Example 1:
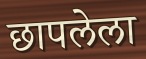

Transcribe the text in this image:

छापलेला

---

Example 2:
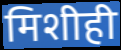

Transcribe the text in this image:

मिशीही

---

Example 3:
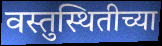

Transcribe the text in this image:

वस्तुस्थितीच्या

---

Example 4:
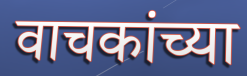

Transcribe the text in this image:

वाचकांच्या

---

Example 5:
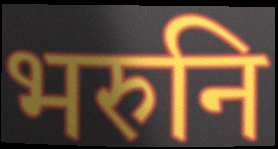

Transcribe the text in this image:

भरुनि